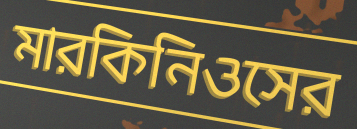
মারকিনিওসের